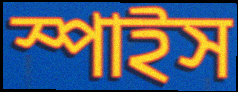
স্পাইস